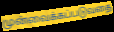
முன்வைக்கப்படுவதை